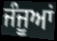
ਜੰਜੂਆਂ